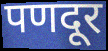
पणदूर